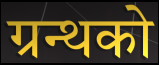
ग्रन्थको